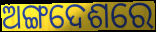
ଅଙ୍ଗଦେଶରେ